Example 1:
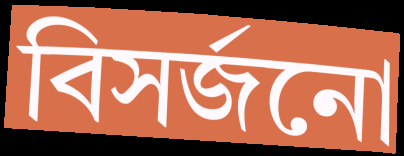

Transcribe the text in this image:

বিসৰ্জনো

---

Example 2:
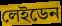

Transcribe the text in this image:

লেইডেন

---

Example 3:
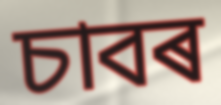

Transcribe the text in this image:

চাবৰ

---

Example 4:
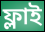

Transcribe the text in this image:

ফ্লাই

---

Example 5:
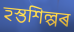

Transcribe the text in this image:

হস্তশিল্পৰ